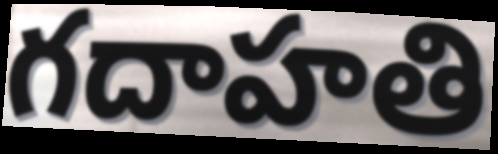
గదాహతి